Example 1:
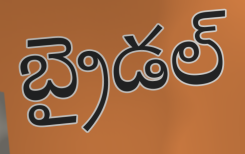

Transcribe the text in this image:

బ్రైడల్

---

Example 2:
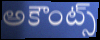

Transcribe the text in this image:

అకౌంట్స్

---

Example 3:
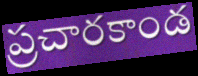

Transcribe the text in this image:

ప్రచారకాండ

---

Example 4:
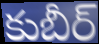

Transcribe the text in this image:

కుబీర్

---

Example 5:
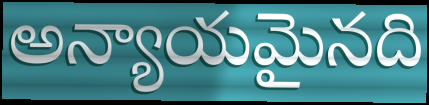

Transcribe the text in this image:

అన్యాయమైనది